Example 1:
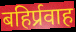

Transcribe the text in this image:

बहिर्प्रवाह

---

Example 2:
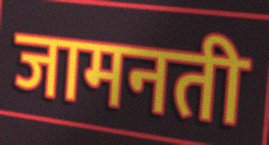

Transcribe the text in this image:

जामनती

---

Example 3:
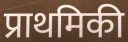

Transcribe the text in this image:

प्राथमिकी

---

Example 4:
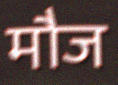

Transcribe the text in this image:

मौज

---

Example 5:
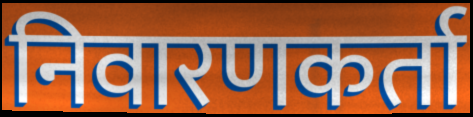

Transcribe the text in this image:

निवारणकर्ता